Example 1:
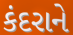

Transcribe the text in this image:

કંદરાને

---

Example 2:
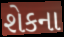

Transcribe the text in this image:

શેકના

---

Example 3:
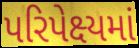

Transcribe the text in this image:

પરિપેક્ષ્યમાં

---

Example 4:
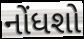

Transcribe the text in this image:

નોંધશો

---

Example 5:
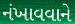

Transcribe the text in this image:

નંખાવવાને